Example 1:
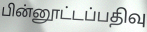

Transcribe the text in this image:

பின்னூட்டப்பதிவு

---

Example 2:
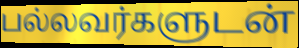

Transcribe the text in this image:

பல்லவர்களுடன்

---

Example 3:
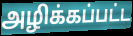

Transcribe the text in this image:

அழிக்கப்பட்ட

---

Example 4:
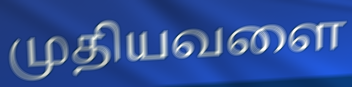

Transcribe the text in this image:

முதியவளை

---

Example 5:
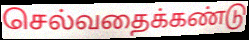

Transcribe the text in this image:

செல்வதைக்கண்டு